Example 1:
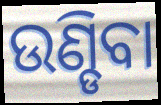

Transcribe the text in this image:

ଉଣ୍ଡିବା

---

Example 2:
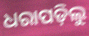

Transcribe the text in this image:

ଧରାପଡ଼ିଲୁ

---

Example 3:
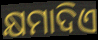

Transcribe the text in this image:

କ୍ଷମାଦିଏ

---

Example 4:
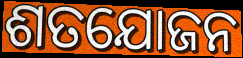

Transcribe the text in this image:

ଶତଯୋଜନ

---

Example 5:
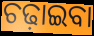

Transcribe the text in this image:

ଚଢ଼ାଇବା